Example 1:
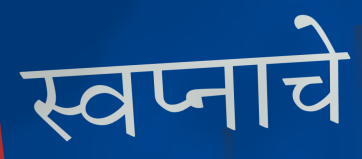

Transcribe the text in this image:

स्वप्नाचे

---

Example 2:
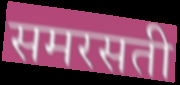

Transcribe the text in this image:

समरसती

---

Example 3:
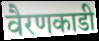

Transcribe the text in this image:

वैरणकाडी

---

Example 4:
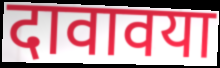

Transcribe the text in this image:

दावावया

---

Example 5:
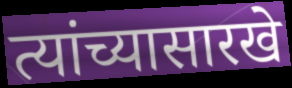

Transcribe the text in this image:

त्यांच्यासारखे